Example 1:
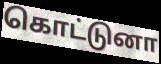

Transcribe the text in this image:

கொட்டுனா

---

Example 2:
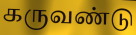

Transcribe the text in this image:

கருவண்டு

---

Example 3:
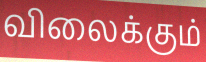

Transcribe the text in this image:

விலைக்கும்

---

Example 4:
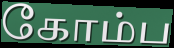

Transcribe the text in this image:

கோம்ப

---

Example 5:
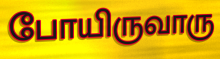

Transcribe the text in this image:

போயிருவாரு